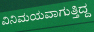
ವಿನಿಮಯವಾಗುತ್ತಿದ್ದ